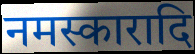
नमस्कारादि